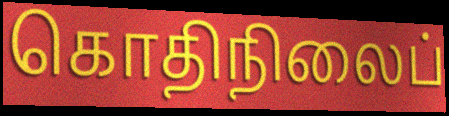
கொதிநிலைப்